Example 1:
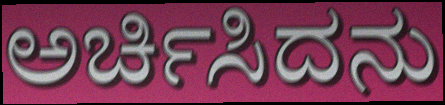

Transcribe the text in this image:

ಅರ್ಚಿಸಿದನು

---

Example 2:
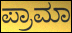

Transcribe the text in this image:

ಪ್ರಾಮಾ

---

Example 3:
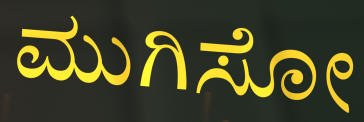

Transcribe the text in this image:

ಮುಗಿಸೋ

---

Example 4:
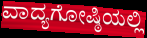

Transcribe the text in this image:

ವಾದ್ಯಗೋಷ್ಠಿಯಲ್ಲಿ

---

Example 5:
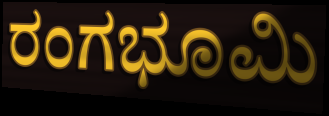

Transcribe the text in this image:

ರಂಗಭೂಮಿ